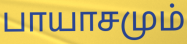
பாயாசமும்